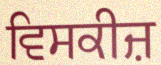
ਵਿਸਕੀਜ਼